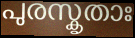
പുരസ്കൃതാഃ